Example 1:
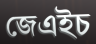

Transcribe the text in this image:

জেএইচ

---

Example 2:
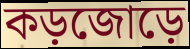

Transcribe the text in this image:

কড়জোড়ে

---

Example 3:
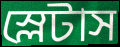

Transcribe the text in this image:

স্লেটাস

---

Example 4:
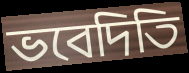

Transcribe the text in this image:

ভবেদিতি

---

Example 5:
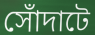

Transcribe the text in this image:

সোঁদাটে